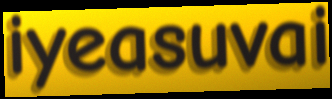
iyeasuvai